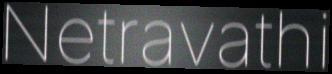
Netravathi